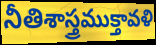
నీతిశాస్త్రముక్తావళి